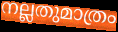
നല്ലതുമാത്രം